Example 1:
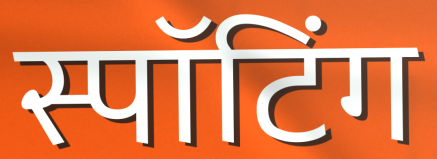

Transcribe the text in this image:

स्पॉटिंग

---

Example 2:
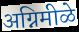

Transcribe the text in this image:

अग्निमीळे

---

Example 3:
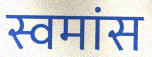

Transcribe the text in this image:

स्वमांस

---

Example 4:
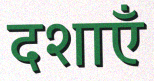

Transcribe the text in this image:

दशाएँ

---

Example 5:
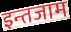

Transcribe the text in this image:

इन्तजाम